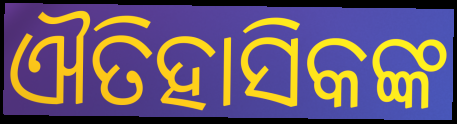
ଐତିହାସିକଙ୍କ